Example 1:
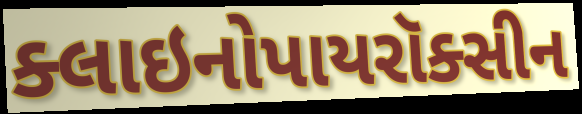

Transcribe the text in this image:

ક્લાઇનોપાયરૉક્સીન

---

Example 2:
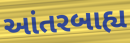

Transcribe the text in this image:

આંતરબાહ્ય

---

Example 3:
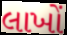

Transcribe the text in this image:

લાખોં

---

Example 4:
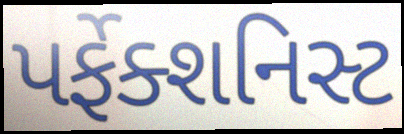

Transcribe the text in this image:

પર્ફેક્શનિસ્ટ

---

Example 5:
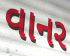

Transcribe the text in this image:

વાનર